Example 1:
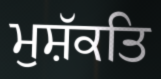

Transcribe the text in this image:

ਮੁਸ਼ੱਕਤਿ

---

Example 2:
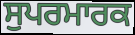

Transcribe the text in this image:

ਸੁਪਰਮਾਰਕ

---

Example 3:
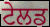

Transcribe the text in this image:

ਟੇਲਡ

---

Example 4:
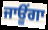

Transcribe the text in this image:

ਜਾਊਂਗਾ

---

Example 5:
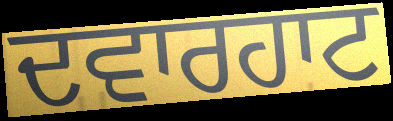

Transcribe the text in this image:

ਦਵਾਰਹਾਟ